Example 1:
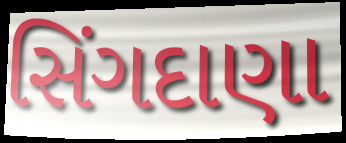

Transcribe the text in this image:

સિંગદાણા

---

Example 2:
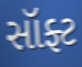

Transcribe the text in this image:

સૉફ્ટ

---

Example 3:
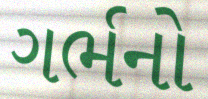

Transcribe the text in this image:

ગર્ભનો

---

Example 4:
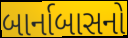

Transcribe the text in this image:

બાર્નાબાસનો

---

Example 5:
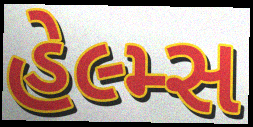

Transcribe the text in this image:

હેલ્મ્સ